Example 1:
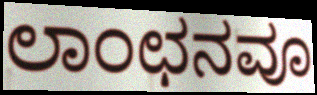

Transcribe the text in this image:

ಲಾಂಛನವೂ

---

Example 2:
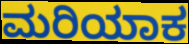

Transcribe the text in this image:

ಮರಿಯಾಕ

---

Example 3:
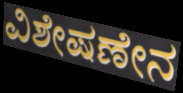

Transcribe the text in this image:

ವಿಶೇಷಣೇನ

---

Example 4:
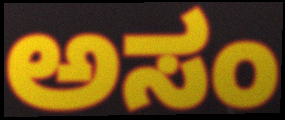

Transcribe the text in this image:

ಅಸಂ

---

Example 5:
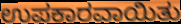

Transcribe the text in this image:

ಉಪಕಾರವಾಯಿತು